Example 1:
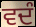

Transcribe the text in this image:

ਵਦੰ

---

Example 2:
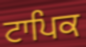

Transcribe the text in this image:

ਟਾਪਿਕ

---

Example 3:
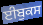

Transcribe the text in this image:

ਈਬੁਕਸ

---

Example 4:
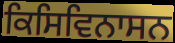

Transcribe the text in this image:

ਕਿਸਿਵਿਨਾਸਨ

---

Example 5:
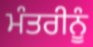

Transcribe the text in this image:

ਮੰਤਰੀਨੂੰ